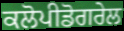
ਕਲੋਪੀਡੋਗਰੇਲ